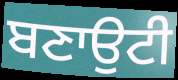
ਬਣਾਉਟੀ